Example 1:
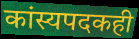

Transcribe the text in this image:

कांस्यपदकही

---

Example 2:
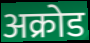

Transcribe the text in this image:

अक्रोड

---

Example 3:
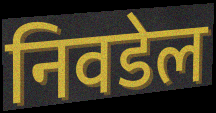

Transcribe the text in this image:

निवडेल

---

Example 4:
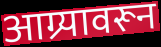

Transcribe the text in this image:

आग्र्यावरून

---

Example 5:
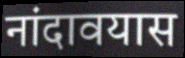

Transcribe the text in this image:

नांदावयास